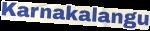
Karnakalangu